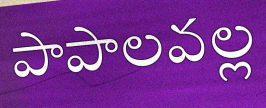
పాపాలవల్ల